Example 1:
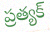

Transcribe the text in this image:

ప్రత్యక్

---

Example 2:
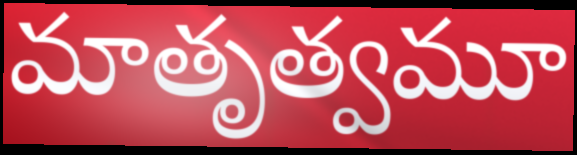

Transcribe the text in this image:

మాతృత్వమూ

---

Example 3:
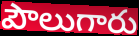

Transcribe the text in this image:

పౌలుగారు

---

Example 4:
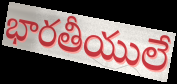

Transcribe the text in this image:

భారతీయులే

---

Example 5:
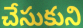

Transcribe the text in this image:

చేసుకుని